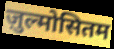
ज़ुल्मोसितम